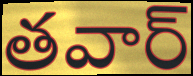
తవార్